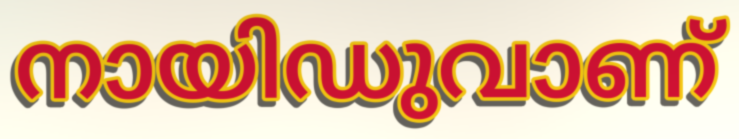
നായിഡുവാണ്